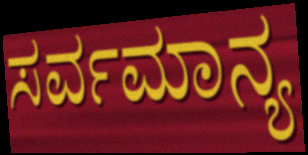
ಸರ್ವಮಾನ್ಯ